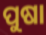
ପୁଷା